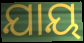
ଯାୟ